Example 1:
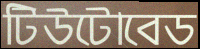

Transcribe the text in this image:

টিউটোবেড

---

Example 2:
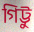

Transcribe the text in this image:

গিট্টু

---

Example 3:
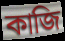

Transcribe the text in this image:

কাজি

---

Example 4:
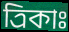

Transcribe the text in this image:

ত্রিকাঃ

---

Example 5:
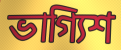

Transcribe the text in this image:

ভাগ্যিশ